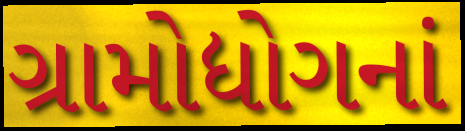
ગ્રામોદ્યોગનાં